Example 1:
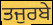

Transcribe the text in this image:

ਤਜੁਰਬੇ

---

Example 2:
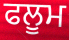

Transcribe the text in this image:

ਫਲੂਮ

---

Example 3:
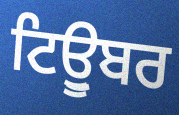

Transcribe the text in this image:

ਟਿਊੁਬਰ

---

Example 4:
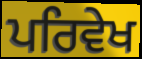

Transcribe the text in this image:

ਪਰਿਵੇਖ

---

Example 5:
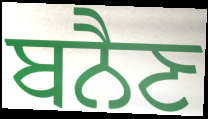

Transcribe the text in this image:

ਬਨੈਣ